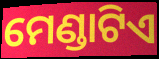
ମେଣ୍ଡାଟିଏ